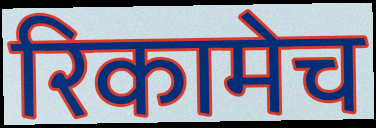
रिकामेच